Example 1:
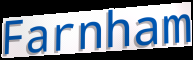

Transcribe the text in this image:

Farnham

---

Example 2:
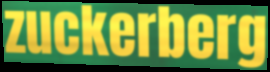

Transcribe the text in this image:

zuckerberg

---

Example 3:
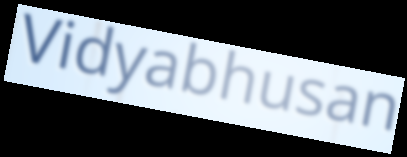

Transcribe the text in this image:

Vidyabhusan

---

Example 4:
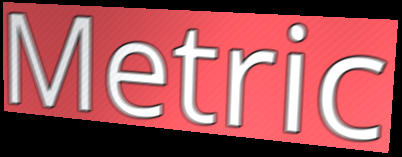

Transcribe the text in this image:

Metric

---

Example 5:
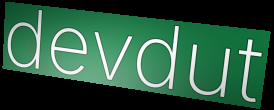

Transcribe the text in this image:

devdut